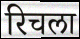
रिचला